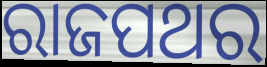
ରାଜପଥର